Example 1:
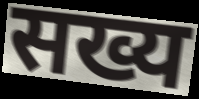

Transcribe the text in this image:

सख्य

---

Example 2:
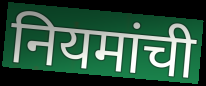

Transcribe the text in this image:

नियमांची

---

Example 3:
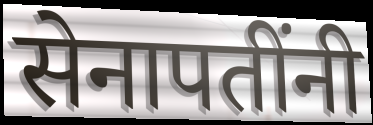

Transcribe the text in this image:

सेनापतींनी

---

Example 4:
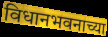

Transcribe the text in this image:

विधानभवनाच्या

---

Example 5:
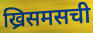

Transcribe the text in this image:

ख्रिसमसची